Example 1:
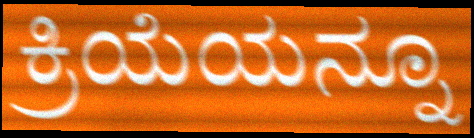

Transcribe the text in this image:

ಕ್ರಿಯೆಯನ್ನೂ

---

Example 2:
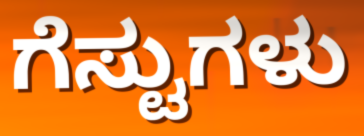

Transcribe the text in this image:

ಗೆಸ್ಟುಗಳು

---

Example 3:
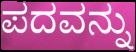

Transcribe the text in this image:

ಪದವನ್ನು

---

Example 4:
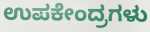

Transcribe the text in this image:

ಉಪಕೇಂದ್ರಗಳು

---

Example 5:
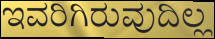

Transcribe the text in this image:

ಇವರಿಗಿರುವುದಿಲ್ಲ